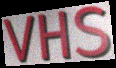
VHS